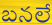
బనలే